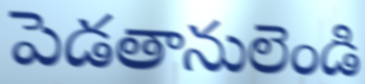
పెడతానులెండి